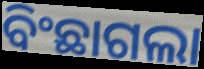
ବିଂଛାଗଲା